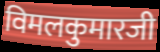
विमलकुमारजी